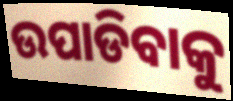
ଉପାଡିବାକୁ